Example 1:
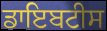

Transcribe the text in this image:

ਡਾਇਬਟੀਸ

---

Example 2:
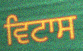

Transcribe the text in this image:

ਵਿਟਾਸ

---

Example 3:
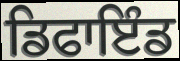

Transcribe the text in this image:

ਡਿਫਾਇੰਡ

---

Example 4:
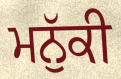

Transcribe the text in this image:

ਮਨੁੱਕੀ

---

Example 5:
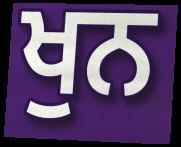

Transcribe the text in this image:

ਖੁਨ